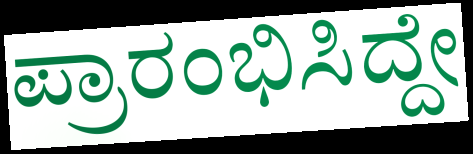
ಪ್ರಾರಂಭಿಸಿದ್ದೇ